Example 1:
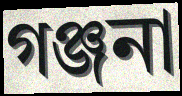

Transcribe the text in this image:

গঞ্জনা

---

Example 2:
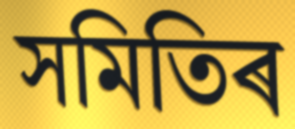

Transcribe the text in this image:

সমিতিৰ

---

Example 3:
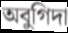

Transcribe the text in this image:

অবুগিদা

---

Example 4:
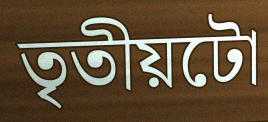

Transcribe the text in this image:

তৃতীয়টো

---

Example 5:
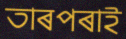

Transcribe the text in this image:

তাৰপৰাই